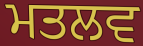
ਮਤਲਵ